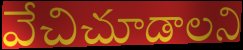
వేచిచూడాలని